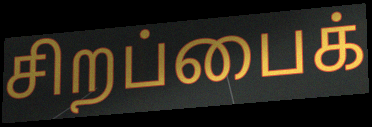
சிறப்பைக்